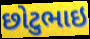
છોટુભાઇ